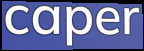
caper